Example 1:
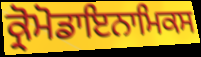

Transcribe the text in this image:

ਕ੍ਰੋਮੋਡਾਇਨਾਮਿਕਸ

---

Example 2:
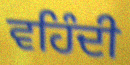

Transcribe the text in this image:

ਵਹਿੰਦੀ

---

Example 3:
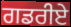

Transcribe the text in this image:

ਗਡਰੀਏ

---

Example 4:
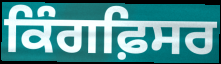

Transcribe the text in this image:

ਕਿੰਗਫ਼ਿਸਰ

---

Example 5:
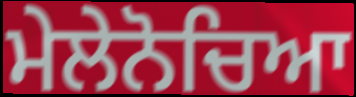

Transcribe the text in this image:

ਮੇਲੇਨੋਚਿਆ